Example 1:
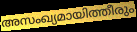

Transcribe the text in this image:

അസംഖ്യമായിത്തീരും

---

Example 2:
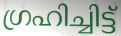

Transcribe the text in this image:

ഗ്രഹിച്ചിട്ട്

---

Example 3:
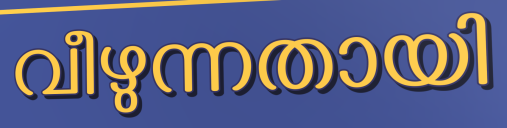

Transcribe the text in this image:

വീഴുന്നതായി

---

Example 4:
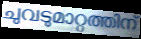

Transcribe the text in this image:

ചുവടുമാറ്റത്തിന്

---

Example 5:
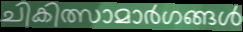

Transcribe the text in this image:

ചികിത്സാമാർഗങ്ങൾ